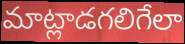
మాట్లాడగలిగేలా